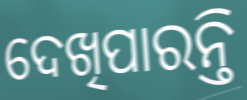
ଦେଖିପାରନ୍ତି